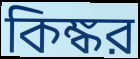
কিঙ্কর